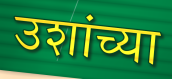
उशांच्या